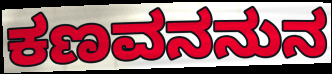
ಕಣವನನುನ